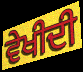
ਵੇਖੀਦੀ